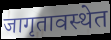
जागृतावस्थेत